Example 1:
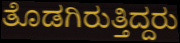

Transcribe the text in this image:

ತೊಡಗಿರುತ್ತಿದ್ದರು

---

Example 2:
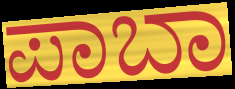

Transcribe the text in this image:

ಪಾಬಾ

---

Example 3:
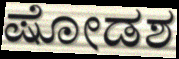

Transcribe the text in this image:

ಷೋಡಶ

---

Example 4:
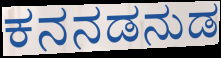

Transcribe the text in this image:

ಕನನಡನುಡ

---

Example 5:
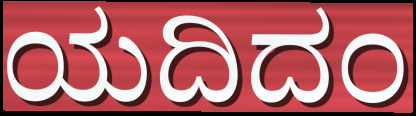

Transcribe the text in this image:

ಯದಿದಂ